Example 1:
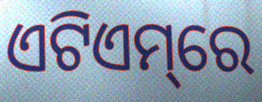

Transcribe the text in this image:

ଏଟିଏମ୍‌ରେ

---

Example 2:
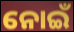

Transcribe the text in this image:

ନୋଇଁ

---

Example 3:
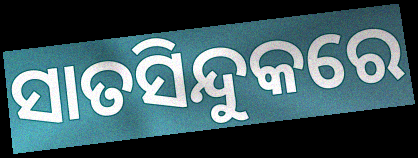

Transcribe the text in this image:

ସାତସିନ୍ଦୁକରେ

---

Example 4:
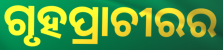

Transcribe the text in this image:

ଗୃହପ୍ରାଚୀରର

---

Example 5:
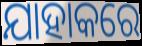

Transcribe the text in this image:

ଯାହାକରେ